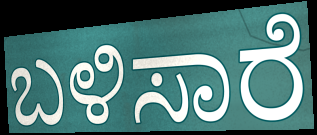
ಬಳಿಸಾರೆ